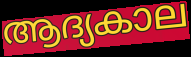
ആദ്യകാല